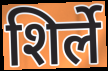
शिर्ले